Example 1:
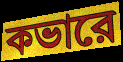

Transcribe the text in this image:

কভারে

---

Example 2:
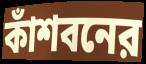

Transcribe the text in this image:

কাঁশবনের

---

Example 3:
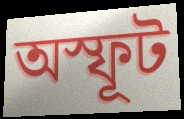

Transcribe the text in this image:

অস্ফূট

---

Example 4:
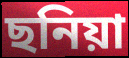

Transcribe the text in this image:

ছনিয়া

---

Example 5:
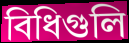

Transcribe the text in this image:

বিধিগুলি